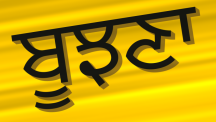
ਬੂਝਣਾ